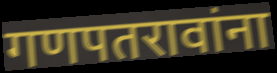
गणपतरावांना